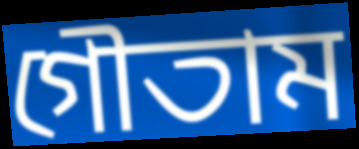
গৌতাম